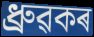
ধ্ৰুৱকৰ